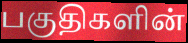
பகுதிகளின்